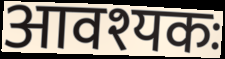
आवश्यकः